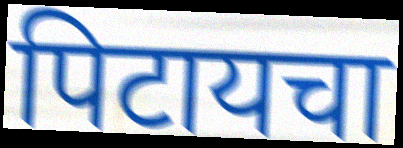
पिटायचा